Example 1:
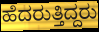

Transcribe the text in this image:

ಹೆದರುತ್ತಿದ್ದರು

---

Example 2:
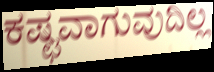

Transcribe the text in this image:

ಕಷ್ಟವಾಗುವುದಿಲ್ಲ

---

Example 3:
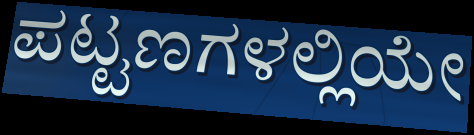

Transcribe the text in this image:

ಪಟ್ಟಣಗಳಲ್ಲಿಯೇ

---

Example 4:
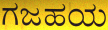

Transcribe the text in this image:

ಗಜಹಯ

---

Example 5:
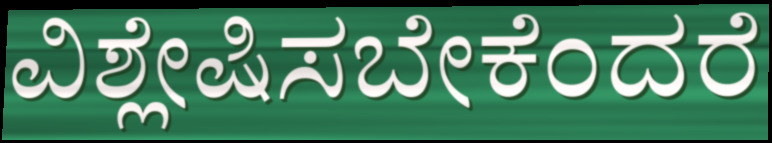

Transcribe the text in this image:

ವಿಶ್ಲೇಷಿಸಬೇಕೆಂದರೆ